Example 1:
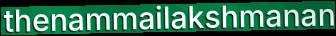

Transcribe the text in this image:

thenammailakshmanan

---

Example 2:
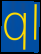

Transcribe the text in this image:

ql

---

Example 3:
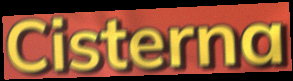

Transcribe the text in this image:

Cisterna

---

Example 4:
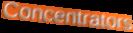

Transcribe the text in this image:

Concentrators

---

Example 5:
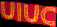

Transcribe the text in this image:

UIUC